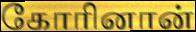
கோரினான்